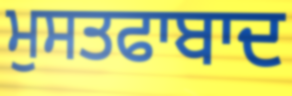
ਮੁਸਤਫਾਬਾਦ